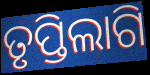
ତୃପ୍ତିଲାଗି